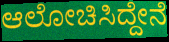
ಆಲೋಚಿಸಿದ್ದೇನೆ